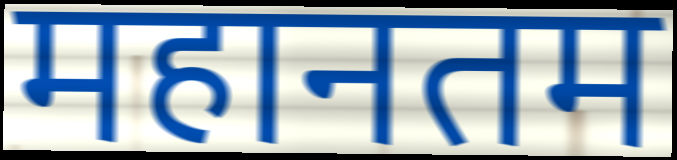
महानतम